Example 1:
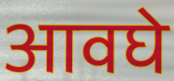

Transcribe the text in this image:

आवघे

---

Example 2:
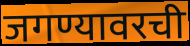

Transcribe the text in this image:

जगण्यावरची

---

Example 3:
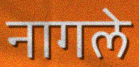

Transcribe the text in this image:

नागले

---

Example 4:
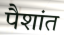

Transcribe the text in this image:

पैशांत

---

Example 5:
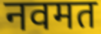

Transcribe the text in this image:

नवमत